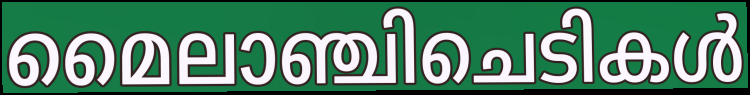
മൈലാഞ്ചിചെടികൾ